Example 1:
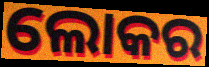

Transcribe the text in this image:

ଲୋକର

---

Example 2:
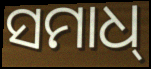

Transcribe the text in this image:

ସମାଧ୍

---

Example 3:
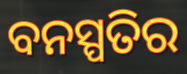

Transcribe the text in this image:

ବନସ୍ପତିର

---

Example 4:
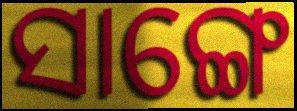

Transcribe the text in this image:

ସାଙ୍ଗେ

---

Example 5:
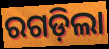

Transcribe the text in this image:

ରଗଡ଼ିଲା